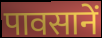
पावसानें